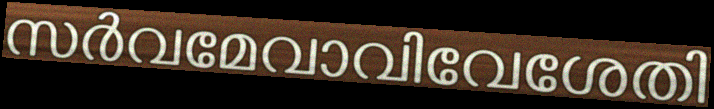
സർവമേവാവിവേശേതി